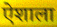
ऐशाला